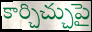
కార్చిచ్చుపై